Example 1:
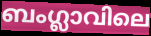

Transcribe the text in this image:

ബംഗ്ലാവിലെ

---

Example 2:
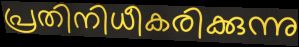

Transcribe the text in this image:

പ്രതിനിധീകരിക്കുന്നു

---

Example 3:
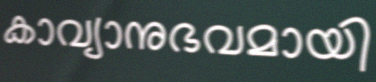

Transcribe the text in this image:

കാവ്യാനുഭവമായി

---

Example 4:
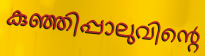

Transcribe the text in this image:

കുഞ്ഞിപ്പാലുവിന്റെ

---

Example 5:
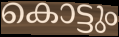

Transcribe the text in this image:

കൊട്ടും